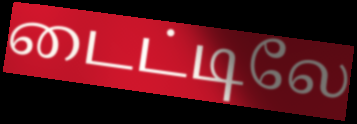
டைட்டிலே